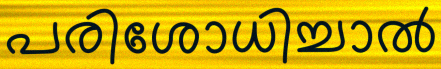
പരിശോധിച്ചാൽ